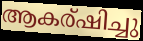
ആകര്ഷിച്ചു